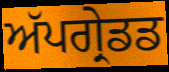
ਅੱਪਗ੍ਰੇਡਡ